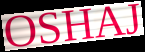
OSHAJ